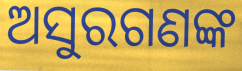
ଅସୁରଗଣଙ୍କ